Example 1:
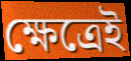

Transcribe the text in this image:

ক্ষেত্রেই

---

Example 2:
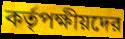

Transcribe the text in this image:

কর্তৃপক্ষীয়দের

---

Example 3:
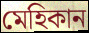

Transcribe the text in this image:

মেহিকান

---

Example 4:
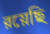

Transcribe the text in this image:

রয়েছি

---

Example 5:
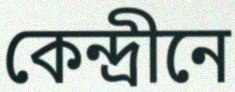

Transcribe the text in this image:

কেন্দ্রীনে